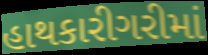
હાથકારીગરીમાં